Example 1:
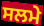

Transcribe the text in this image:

ਸਲਮੇ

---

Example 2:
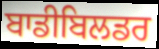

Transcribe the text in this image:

ਬਾਡੀਬਿਲਡਰ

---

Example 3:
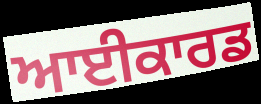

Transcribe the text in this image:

ਆਈਕਾਰਡ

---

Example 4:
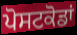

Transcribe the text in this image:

ਪੋਸਟਕੋਡਾਂ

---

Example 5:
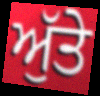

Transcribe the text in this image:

ਅੁੱਤੇ